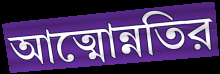
আত্মোন্নতির